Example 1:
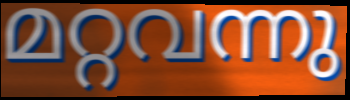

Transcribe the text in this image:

മറ്റവന്നു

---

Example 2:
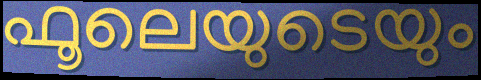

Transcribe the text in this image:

ഫൂലെയുടെയും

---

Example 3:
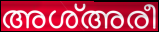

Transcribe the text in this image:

അശ്അരീ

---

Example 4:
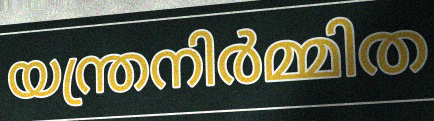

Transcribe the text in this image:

യന്ത്രനിർമ്മിത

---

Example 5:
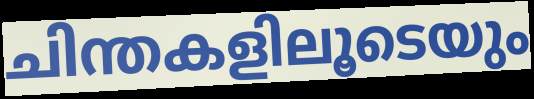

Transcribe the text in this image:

ചിന്തകളിലൂടെയും